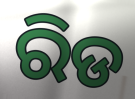
ରିଡ